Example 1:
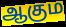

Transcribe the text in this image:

ஆகும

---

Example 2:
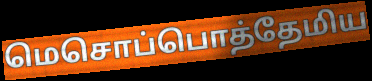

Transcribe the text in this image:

மெசொப்பொத்தேமிய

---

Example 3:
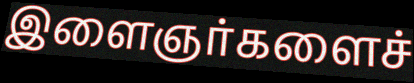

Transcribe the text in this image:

இளைஞர்களைச்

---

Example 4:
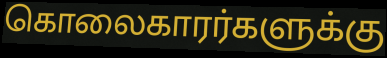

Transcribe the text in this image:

கொலைகாரர்களுக்கு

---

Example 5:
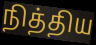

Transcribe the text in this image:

நித்திய